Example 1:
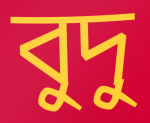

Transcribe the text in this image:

বুদু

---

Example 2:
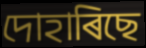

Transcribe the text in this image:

দোহাৰিছে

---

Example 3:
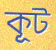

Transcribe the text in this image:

কূট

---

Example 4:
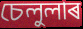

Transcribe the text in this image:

চেলুলাৰ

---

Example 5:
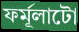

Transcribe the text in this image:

ফৰ্মূলাটো